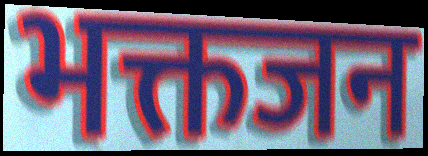
भक्तजन